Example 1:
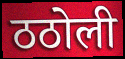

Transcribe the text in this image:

ठठोली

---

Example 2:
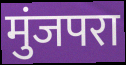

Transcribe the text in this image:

मुंजपरा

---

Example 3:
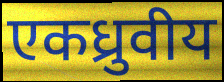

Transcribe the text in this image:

एकध्रुवीय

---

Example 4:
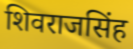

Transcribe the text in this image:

शिवराजसिंह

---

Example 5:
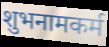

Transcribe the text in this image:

शुभनामकर्म